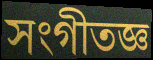
সংগীতজ্ঞ